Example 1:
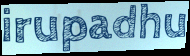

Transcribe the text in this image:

irupadhu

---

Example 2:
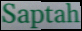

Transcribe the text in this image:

Saptah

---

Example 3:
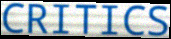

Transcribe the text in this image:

CRITICS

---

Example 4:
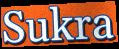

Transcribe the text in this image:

Sukra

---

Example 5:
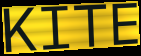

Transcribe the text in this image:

KITE